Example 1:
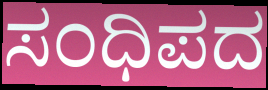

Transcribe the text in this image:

ಸಂಧಿಪದ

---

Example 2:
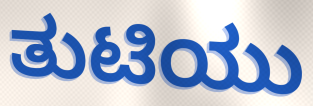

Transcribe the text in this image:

ತುಟಿಯು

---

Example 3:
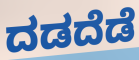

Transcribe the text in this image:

ದಡದೆಡೆ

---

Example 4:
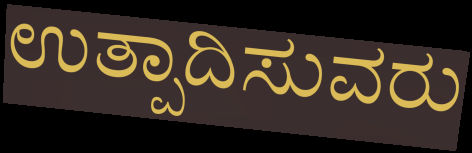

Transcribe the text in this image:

ಉತ್ಪಾದಿಸುವರು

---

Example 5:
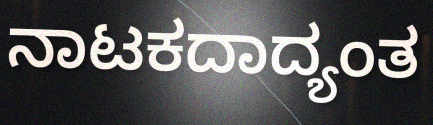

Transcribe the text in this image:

ನಾಟಕದಾದ್ಯಂತ